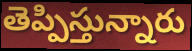
తెప్పిస్తున్నారు